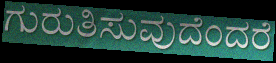
ಗುರುತಿಸುವುದೆಂದರೆ